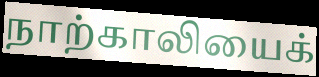
நாற்காலியைக்